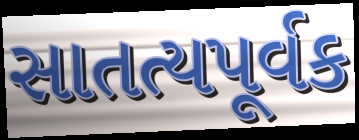
સાતત્યપૂર્વક